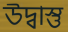
উদ্বাস্তু